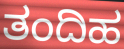
ತಂದಿಹ